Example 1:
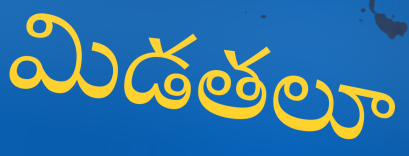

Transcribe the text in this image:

మిడతలూ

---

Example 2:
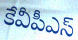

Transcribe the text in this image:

కేవీపీఎస్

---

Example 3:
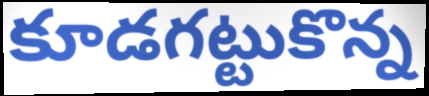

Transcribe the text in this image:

కూడగట్టుకొన్న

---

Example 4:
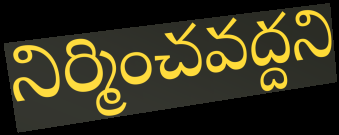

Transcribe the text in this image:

నిర్మించవద్దని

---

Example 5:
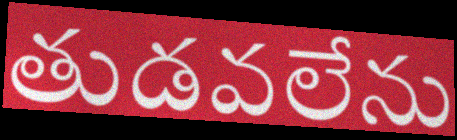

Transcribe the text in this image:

తుడవలేను